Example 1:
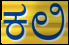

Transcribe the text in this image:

ಕಲಿ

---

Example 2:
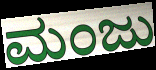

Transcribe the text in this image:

ಮಂಜು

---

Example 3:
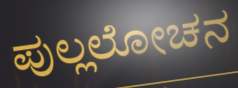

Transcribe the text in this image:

ಪುಲ್ಲಲೋಚನ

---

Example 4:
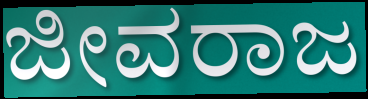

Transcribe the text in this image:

ಜೀವರಾಜ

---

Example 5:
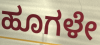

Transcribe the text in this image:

ಹೂಗಳೇ